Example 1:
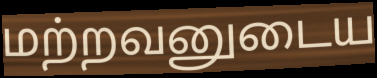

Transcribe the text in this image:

மற்றவனுடைய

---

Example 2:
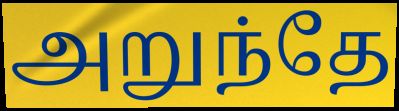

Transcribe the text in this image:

அறுந்தே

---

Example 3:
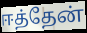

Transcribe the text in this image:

ஈத்தேன்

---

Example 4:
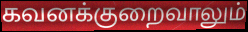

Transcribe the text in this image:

கவனக்குறைவாலும்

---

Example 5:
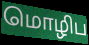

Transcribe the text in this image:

மொழிப